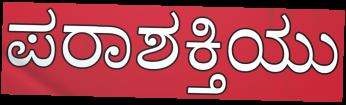
ಪರಾಶಕ್ತಿಯು